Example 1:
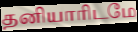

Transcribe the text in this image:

தனியாரிடமே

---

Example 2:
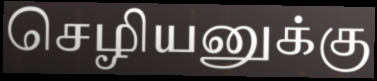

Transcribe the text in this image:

செழியனுக்கு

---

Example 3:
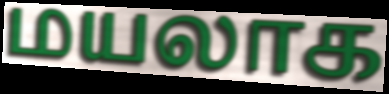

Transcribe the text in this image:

மயலாக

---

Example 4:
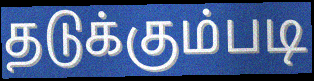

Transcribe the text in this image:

தடுக்கும்படி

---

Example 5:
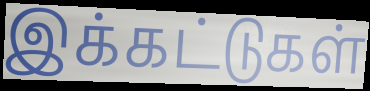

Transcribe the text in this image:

இக்கட்டுகள்